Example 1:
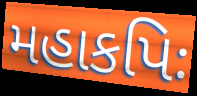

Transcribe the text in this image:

મહાકપિઃ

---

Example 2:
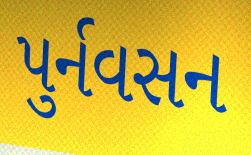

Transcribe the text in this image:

પુર્નવસન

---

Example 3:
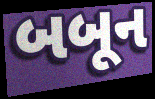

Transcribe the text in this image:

બબૂન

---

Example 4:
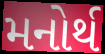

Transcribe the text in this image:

મનોર્થ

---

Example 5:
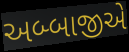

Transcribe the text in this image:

અબ્બાજીએ